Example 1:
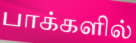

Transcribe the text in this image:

பாக்களில்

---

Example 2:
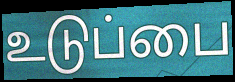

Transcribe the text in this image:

உடுப்பை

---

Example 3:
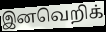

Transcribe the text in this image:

இனவெறிக்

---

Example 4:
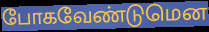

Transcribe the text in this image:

போகவேண்டுமென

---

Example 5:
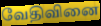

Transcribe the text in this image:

வேதிவினை